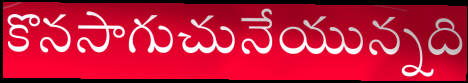
కొనసాగుచునేయున్నది